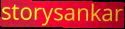
storysankar